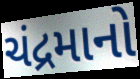
ચંદ્રમાનો